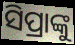
ସିପ୍ରାଙ୍କୁ